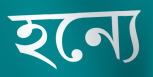
হন্যে